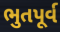
ભુતપૂર્વ